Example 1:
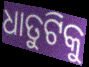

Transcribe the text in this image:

ଧାତୁଟିକୁ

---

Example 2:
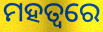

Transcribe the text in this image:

ମହତ୍ୱରେ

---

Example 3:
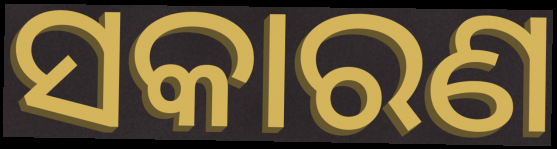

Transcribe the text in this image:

ସକାରଣ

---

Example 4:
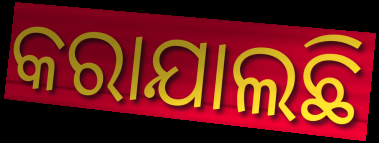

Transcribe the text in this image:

କରାଯାଲଛି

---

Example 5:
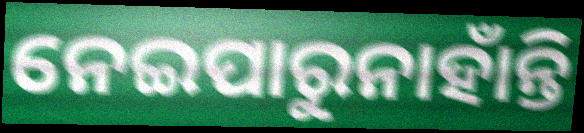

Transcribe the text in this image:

ନେଇପାରୁନାହାଁନ୍ତି